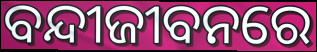
ବନ୍ଦୀଜୀବନରେ